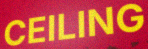
CEILING